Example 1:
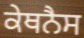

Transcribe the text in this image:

ਕੇਥਨੈਸ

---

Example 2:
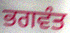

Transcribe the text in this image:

ਭਗਵੰਤ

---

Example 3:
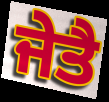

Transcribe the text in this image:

ਜੇਤੈ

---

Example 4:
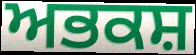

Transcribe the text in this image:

ਅਭਕਸ਼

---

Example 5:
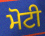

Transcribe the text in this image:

ਮੋਟੀ